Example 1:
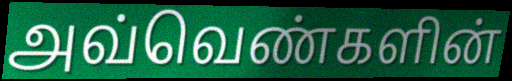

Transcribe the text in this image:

அவ்வெண்களின்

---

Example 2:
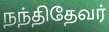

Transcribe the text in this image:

நந்திதேவர்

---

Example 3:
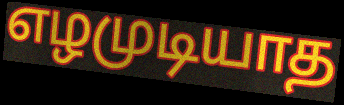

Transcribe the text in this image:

எழமுடியாத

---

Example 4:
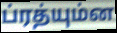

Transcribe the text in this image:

ப்ரத்யும்ன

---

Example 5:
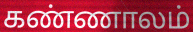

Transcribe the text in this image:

கண்ணாலம்